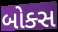
બોક્સ